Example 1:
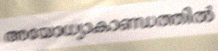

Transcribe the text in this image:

അയോധ്യാകാണ്ഡത്തിൽ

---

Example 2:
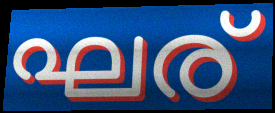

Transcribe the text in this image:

ഘര്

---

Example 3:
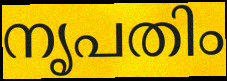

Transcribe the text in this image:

നൃപതിം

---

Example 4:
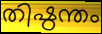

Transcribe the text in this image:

തിഷ്ഠന്തം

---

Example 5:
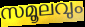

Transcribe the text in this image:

സമൂലവും